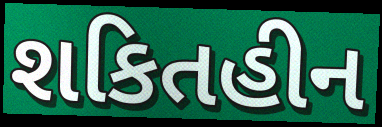
શકિતહીન